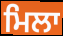
ਮਿਲਾ